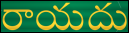
రాయదు